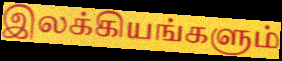
இலக்கியங்களும்